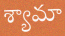
శ్యామా